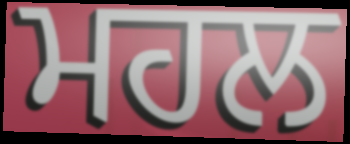
ਮਹਲ